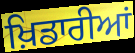
ਖ਼ਿਡਾਰੀਆਂ